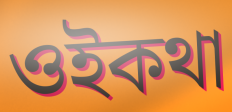
ওইকথা